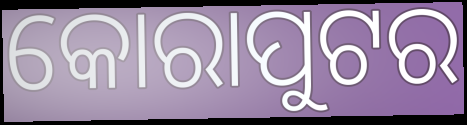
କୋରାପୁଟର